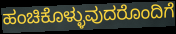
ಹಂಚಿಕೊಳ್ಳುವುದರೊಂದಿಗೆ